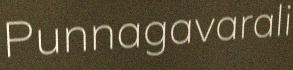
Punnagavarali